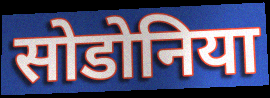
सोडोनिया